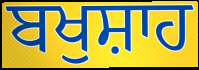
ਬਖੁਸ਼ਾਹ